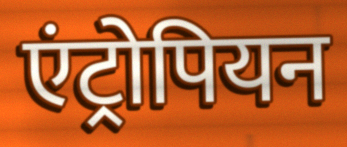
एंट्रोपियन